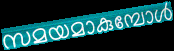
സമയമാകുമ്പോൾ